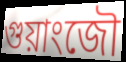
গুয়াংজৌ